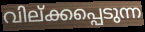
വില്ക്കപ്പെടുന്ന